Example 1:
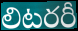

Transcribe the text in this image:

లిటరరీ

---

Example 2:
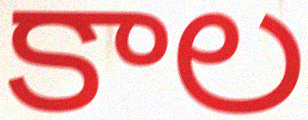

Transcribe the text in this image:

కాల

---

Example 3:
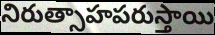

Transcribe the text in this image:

నిరుత్సాహపరుస్తాయి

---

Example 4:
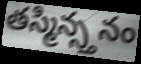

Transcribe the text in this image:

తస్మిన్స్తనం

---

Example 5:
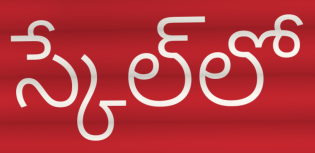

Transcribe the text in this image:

స్కేల్‌లో